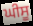
ਘੀਸੂ